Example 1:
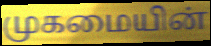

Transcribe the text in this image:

முகமையின்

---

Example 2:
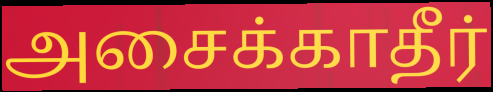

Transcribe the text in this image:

அசைக்காதீர்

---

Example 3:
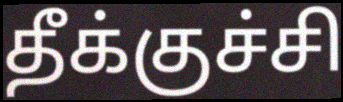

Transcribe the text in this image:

தீக்குச்சி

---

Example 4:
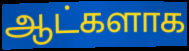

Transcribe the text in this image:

ஆட்களாக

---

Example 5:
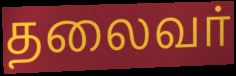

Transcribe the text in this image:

தலைவர்